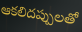
ఆకలిదప్పులతో